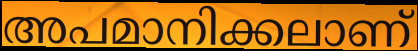
അപമാനിക്കലാണ്